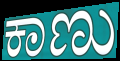
ಕಾಣು